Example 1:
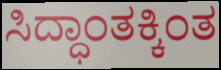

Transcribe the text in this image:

ಸಿದ್ಧಾಂತಕ್ಕಿಂತ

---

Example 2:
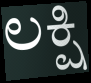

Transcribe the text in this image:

ಲಕ್ಷಿ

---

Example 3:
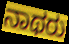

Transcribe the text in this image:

ನಾಥರು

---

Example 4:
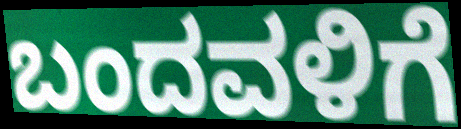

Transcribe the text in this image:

ಬಂದವಳಿಗೆ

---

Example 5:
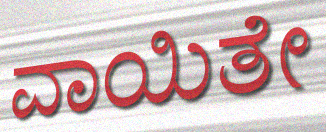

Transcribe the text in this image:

ವಾಯಿತೇ